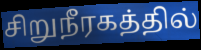
சிறுநீரகத்தில்